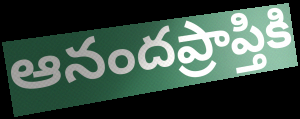
ఆనందప్రాప్తికి